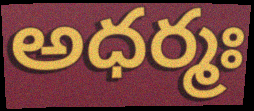
అధర్మః